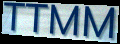
TTMM